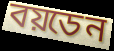
বয়ডেন